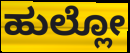
ಹುಲ್ಲೋ